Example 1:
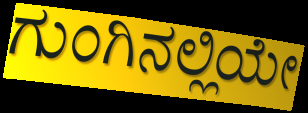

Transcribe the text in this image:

ಗುಂಗಿನಲ್ಲಿಯೇ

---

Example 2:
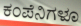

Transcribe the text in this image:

ಕಂಪೆನಿಗಳೂ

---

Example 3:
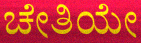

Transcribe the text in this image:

ಚೇತಿಯೇ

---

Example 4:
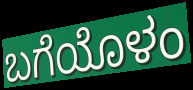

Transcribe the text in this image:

ಬಗೆಯೊಳಂ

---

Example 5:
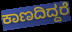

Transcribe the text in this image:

ಕಾಣದಿದ್ದರೆ